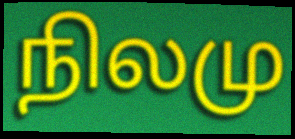
நிலமு